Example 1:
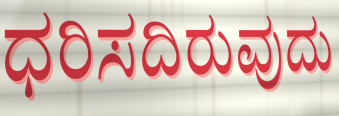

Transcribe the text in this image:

ಧರಿಸದಿರುವುದು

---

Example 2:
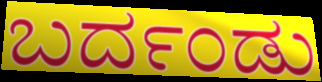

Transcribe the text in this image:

ಬರ್ದಂಡು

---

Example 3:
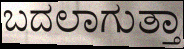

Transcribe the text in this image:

ಬದಲಾಗುತ್ತಾ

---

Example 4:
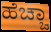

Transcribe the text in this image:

ಹೆಚ್ಚಾ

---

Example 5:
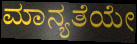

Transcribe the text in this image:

ಮಾನ್ಯತೆಯೇ